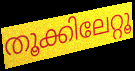
തൂക്കിലേറ്റൂ